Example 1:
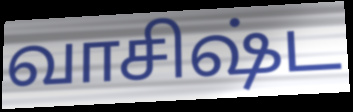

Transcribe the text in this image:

வாசிஷ்ட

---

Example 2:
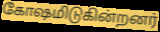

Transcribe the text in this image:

கோஷமிடுகின்றனர்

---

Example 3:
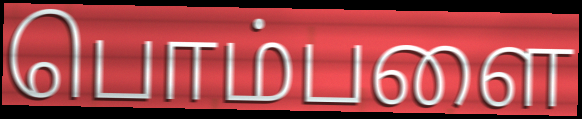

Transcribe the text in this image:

பொம்பளை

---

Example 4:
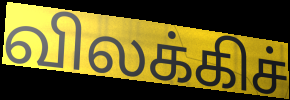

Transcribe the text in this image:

விலக்கிச்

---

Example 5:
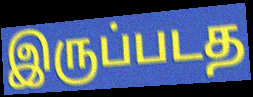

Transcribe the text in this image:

இருப்படத